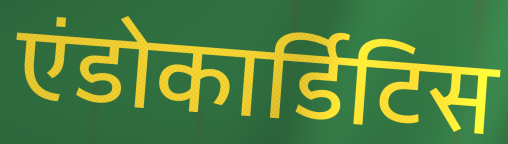
एंडोकार्डिटिस